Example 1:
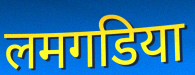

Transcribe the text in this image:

लमगडिया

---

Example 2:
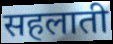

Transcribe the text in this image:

सहलाती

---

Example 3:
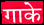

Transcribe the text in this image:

गाके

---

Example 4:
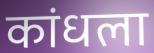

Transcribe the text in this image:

कांधला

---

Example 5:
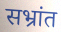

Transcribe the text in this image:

सभ्रांत